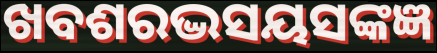
ଖବଶରଦ୍ଭସୟସଙ୍କଜ୍ଞ